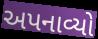
અપનાવ્યો